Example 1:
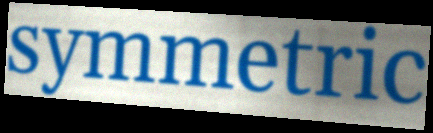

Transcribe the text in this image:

symmetric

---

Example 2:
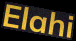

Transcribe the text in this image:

Elahi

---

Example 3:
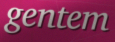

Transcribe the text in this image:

gentem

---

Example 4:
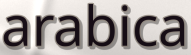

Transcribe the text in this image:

arabica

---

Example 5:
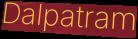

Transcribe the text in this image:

Dalpatram